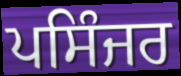
ਪਸਿੰਜਰ